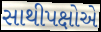
સાથીપક્ષોએ